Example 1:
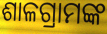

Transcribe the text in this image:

ଶାଳଗ୍ରାମଙ୍କ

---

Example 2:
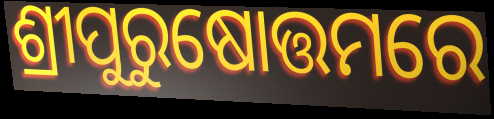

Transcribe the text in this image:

ଶ୍ରୀପୁରୁଷୋତ୍ତମରେ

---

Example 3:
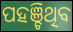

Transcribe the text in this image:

ପହଞ୍ଚିଥିବ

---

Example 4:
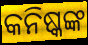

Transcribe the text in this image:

କନିଷ୍କଙ୍କ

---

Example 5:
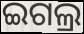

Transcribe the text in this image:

ଇଗଲ୍ର